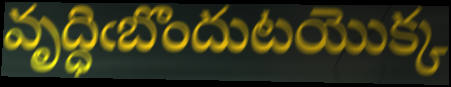
వృద్ధిఁబొందుటయొక్క